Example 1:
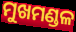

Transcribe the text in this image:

ମୁଖମଣ୍ଡଳ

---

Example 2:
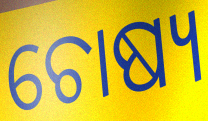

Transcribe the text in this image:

ଚୋଷ୍ୟ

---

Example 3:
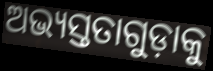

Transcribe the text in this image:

ଅଭ୍ୟସ୍ତତାଗୁଡ଼ାକୁ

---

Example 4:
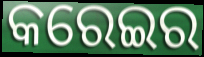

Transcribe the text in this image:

କରେଇର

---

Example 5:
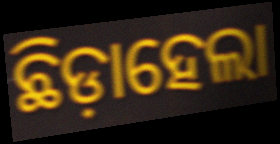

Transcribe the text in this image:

ଛିଡ଼ାହେଲା